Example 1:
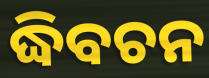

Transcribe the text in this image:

ଦ୍ଧିବଚନ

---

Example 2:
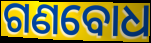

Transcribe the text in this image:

ଗଣବୋଧ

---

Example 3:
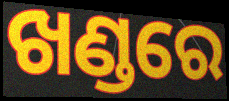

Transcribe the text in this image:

ଖଣ୍ଡରେ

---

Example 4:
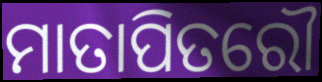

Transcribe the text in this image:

ମାତାପିତରୌ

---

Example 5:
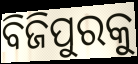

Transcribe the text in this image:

ବିଜିପୁରକୁ